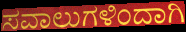
ಸವಾಲುಗಳಿಂದಾಗಿ